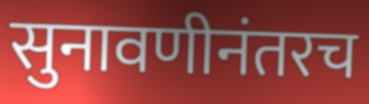
सुनावणीनंतरच